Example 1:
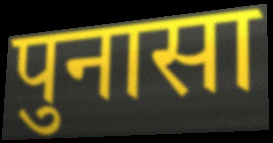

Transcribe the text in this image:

पुनासा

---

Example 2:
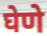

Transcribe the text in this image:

घेणे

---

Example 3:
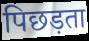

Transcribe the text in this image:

पिछड़ता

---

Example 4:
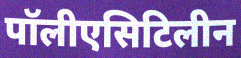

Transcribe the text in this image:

पॉलीएसिटिलीन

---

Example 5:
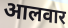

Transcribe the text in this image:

आलवार